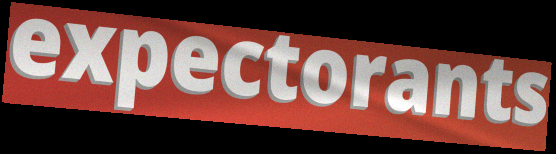
expectorants